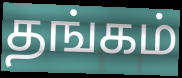
தங்கம்